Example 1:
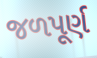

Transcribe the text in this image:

જળપૂર્ણ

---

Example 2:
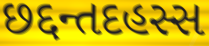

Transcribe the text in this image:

છદ્દન્તદહસ્સ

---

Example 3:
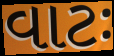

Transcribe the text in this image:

વાટઃ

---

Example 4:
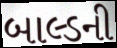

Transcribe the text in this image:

બાલ્ડની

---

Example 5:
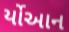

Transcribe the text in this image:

ર્યોઆન